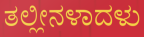
ತಲ್ಲೀನಳಾದಳು